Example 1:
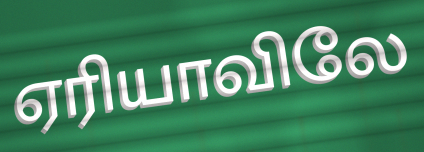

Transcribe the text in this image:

ஏரியாவிலே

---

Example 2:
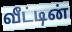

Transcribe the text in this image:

வீட்டின்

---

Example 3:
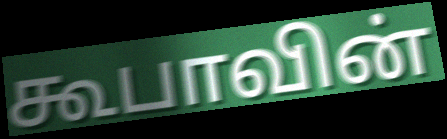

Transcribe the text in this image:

கூபாவின்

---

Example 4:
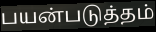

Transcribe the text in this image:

பயன்படுத்தம்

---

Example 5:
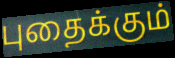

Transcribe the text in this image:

புதைக்கும்